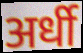
अर्धी